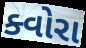
ક્વોરા